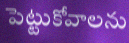
పెట్టుకోవాలను